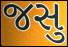
જસુ